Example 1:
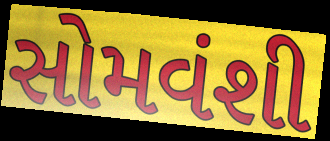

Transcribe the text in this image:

સોમવંશી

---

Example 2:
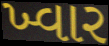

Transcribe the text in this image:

ખ્વાર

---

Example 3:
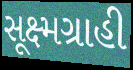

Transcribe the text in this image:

સૂક્ષ્મગ્રાહી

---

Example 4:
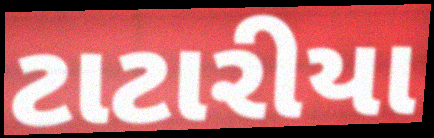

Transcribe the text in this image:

ટાટારીયા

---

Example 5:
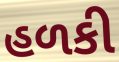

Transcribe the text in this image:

હળકી